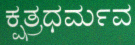
ಕ್ಷತ್ರಧರ್ಮವ